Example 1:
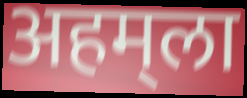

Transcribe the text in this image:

अहम्‌ला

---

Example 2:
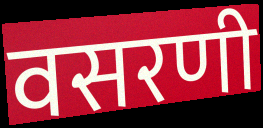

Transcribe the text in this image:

वसरणी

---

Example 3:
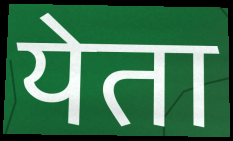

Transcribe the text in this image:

येता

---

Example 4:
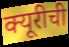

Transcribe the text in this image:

क्यूरीची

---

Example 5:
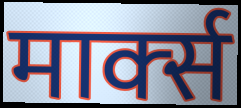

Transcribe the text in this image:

मार्क्‍स